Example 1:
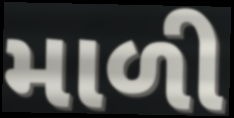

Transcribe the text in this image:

માળી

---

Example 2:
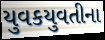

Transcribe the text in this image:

યુવકયુવતીના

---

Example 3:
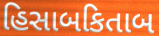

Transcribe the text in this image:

હિસાબકિતાબ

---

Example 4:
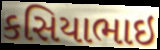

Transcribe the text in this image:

કસિયાભાઇ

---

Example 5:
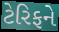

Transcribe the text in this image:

ટેરિફને